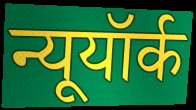
न्यूयॉर्क